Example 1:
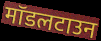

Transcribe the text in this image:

मॉडलटाउन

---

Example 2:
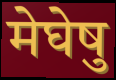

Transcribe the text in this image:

मेघेषु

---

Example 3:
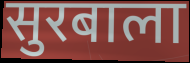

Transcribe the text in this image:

सुरबाला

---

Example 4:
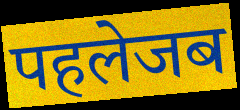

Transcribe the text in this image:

पहलेजब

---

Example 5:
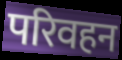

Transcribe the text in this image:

परिवहन